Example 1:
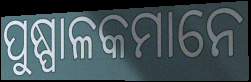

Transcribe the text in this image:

ପୁଷ୍ପାଳକମାନେ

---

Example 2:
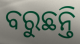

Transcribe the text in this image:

ବରୁଛନ୍ତି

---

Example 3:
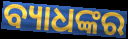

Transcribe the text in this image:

ବ୍ୟାଧଙ୍କର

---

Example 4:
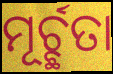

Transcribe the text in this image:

ମୂର୍ଚ୍ଛତା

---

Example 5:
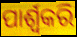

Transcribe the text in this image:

ପାର୍ଶ୍ଵକରି